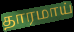
தாரமாய்